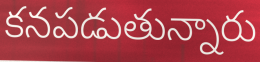
కనపడుతున్నారు